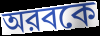
অরবকে